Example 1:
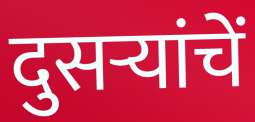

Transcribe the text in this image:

दुसऱ्यांचें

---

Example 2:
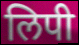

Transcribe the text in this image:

लिपी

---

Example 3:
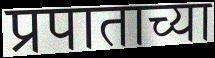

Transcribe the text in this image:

प्रपाताच्या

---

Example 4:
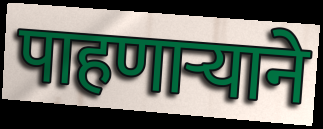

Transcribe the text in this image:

पाहणार्‍याने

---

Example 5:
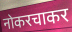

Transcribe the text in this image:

नोकरचाकर